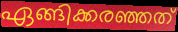
ഏങ്ങിക്കരഞ്ഞത്